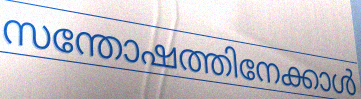
സന്തോഷത്തിനേക്കാൾ